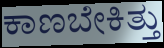
ಕಾಣಬೇಕಿತ್ತು